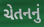
ચેતનનું